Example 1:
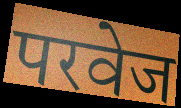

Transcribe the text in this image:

परवेज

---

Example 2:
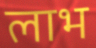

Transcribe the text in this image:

लाभ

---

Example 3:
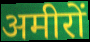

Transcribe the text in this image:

अमीरों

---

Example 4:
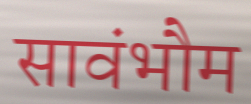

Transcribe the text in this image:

सावंभौम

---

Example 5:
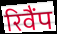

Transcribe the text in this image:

रिवैंप